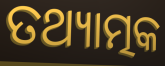
ତଥ୍ୟାତ୍ମକ